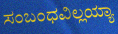
ಸಂಬಂಧವಿಲ್ಲಯ್ಯಾ